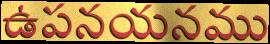
ఉపనయనము